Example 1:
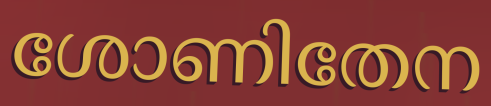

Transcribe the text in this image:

ശോണിതേന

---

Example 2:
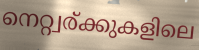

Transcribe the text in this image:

നെറ്റ്വര്ക്കുകളിലെ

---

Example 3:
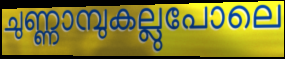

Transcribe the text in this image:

ചുണ്ണാമ്പുകല്ലുപോലെ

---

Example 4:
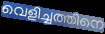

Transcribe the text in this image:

വെളിച്ചത്തിനെ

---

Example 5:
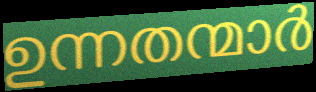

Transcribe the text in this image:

ഉന്നതന്മാർ